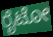
ರೈಟೋ